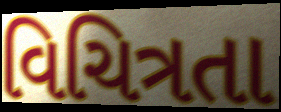
વિચિત્રતા